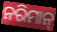
ନରିମାନ୍